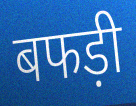
बफड़ी